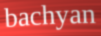
bachyan